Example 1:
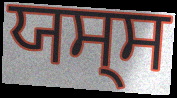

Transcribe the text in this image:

ਯਸ੍ਸ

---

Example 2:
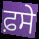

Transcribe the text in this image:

ਫ਼ਸੇ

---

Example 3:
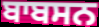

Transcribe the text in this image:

ਬਾਬਸਨ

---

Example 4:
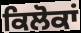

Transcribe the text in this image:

ਕਿਲੋਕਾਂ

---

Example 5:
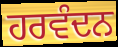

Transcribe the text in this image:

ਹਰਵੰਦਨ